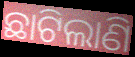
ଛାଟିଲାଣି